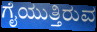
ಗೈಯುತ್ತಿರುವ